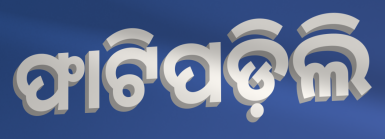
ଫାଟିପଡ଼ିଲି